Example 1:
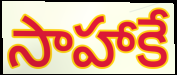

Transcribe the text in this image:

సాహాకే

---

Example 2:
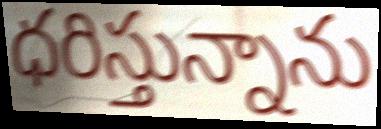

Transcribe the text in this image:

ధరిస్తున్నాను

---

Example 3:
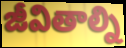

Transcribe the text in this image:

జీవితాల్ని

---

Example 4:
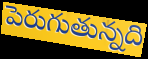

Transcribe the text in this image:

పెరుగుతున్నది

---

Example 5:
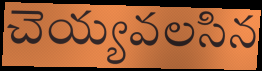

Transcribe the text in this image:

చెయ్యవలసిన